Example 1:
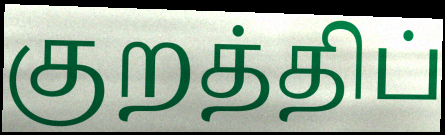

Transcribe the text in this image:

குறத்திப்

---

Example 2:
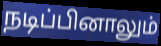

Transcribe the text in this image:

நடிப்பினாலும்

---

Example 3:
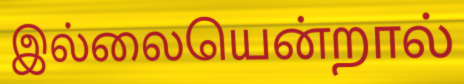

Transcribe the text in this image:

இல்லையென்றால்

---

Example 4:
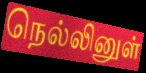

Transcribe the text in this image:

நெல்லினுள்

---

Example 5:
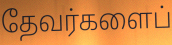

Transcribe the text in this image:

தேவர்களைப்